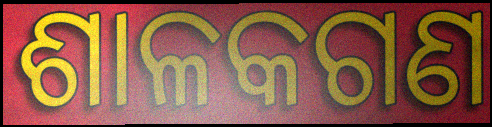
ଶାଳକଗଣ